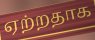
ஏற்றதாக